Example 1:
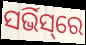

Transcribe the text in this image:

ସର୍ଭିସ୍‌ରେ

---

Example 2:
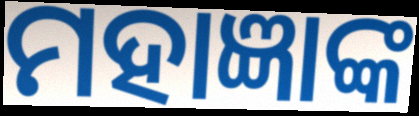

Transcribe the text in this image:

ମହାଜ୍ଞାଙ୍କ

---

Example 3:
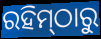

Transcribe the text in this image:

ରହିମ୍‌ଠାରୁ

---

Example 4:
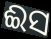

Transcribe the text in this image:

ଈସ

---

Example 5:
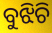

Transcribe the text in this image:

ବୁଝିଚି